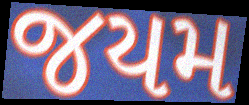
જયમ